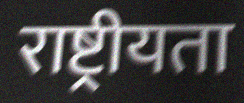
राष्ट्रीयता